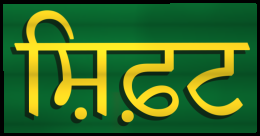
ਸ਼ਿਫ਼ਟ